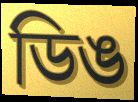
ডিঙ